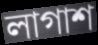
লাগাশ